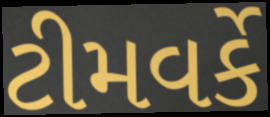
ટીમવર્કે